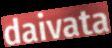
daivata